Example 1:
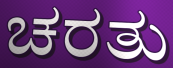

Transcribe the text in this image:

ಚರತು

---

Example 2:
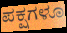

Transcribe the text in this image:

ಪಕ್ಷಗಳೂ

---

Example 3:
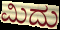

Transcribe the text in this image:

ಮಿದು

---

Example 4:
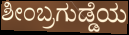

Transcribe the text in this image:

ಶೀಂಬ್ರಗುಡ್ಡೆಯ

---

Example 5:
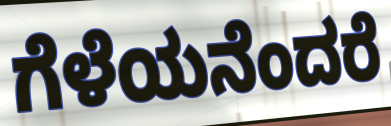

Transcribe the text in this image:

ಗೆಳೆಯನೆಂದರೆ